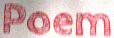
Poem